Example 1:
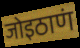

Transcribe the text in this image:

जोइठाणं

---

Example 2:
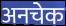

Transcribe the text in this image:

अनचेक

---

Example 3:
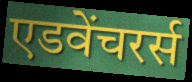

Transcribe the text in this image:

एडवेंचरर्स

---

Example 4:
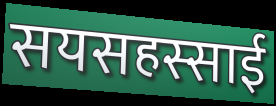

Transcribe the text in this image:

सयसहस्साई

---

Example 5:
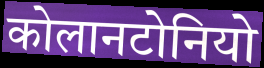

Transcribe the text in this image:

कोलानटोनियो